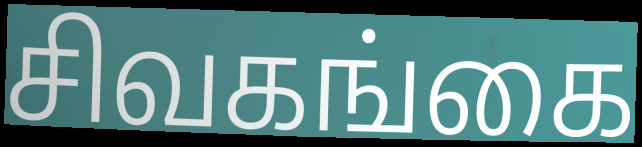
சிவகங்கை